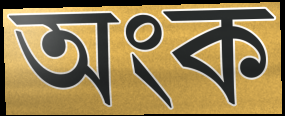
অংক